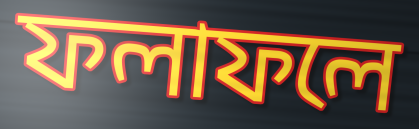
ফলাফলে